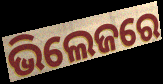
ଭିଲେଜରେ